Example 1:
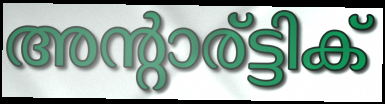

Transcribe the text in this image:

അന്റാര്ട്ടിക്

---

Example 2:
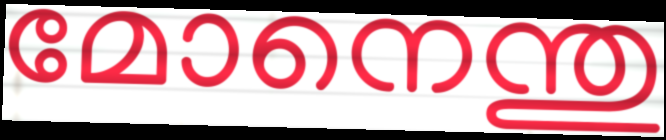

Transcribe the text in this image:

മോനെന്തു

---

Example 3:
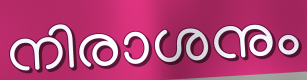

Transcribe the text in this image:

നിരാശനും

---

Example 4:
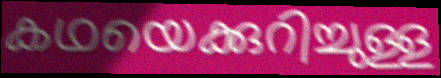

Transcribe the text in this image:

കഥയെക്കുറിച്ചുള്ള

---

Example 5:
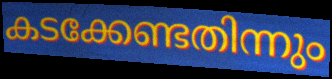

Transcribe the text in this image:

കടക്കേണ്ടതിന്നും